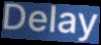
Delay